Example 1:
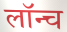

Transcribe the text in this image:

लॉन्‍च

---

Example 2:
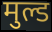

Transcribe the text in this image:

मुल्ड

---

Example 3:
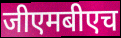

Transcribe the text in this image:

जीएमबीएच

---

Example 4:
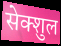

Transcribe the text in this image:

सेक्शुल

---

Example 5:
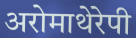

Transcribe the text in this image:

अरोमाथेरेपी